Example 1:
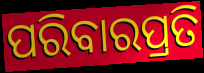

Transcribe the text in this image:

ପରିବାରପ୍ରତି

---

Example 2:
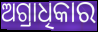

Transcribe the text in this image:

ଅଗ୍ରାଧିକାର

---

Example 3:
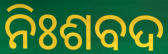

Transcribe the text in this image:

ନିଃଶବଦ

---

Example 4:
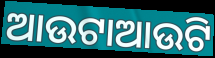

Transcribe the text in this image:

ଆଉଟାଆଉଟି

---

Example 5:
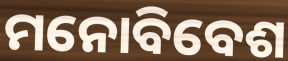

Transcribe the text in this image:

ମନୋବିବେଶ